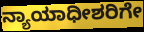
ನ್ಯಾಯಾಧೀಶರಿಗೇ